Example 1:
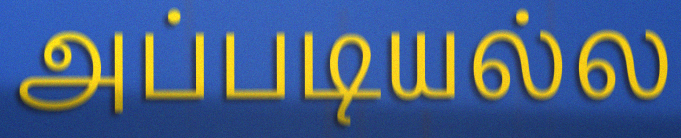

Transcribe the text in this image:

அப்படியல்ல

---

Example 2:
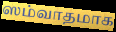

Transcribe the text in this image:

ஸம்வாதமாக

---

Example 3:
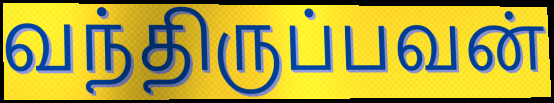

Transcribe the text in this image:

வந்திருப்பவன்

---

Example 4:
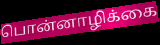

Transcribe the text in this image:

பொன்னாழிக்கை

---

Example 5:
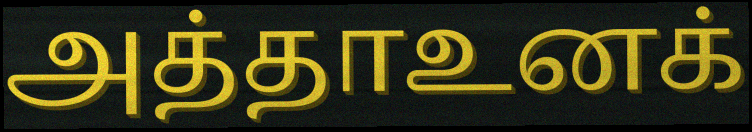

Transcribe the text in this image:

அத்தாஉனக்